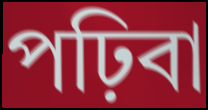
পঢ়িবা